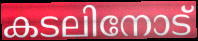
കടലിനോട്